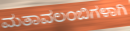
ಮತಾವಲಂಬಿಗಳಾಗಿ